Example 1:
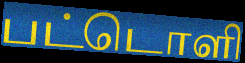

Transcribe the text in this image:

பட்டொளி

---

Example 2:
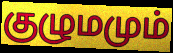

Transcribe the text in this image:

குழுமமும்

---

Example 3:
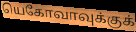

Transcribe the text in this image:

யெகோவாவுக்குக்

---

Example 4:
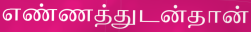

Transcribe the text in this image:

எண்ணத்துடன்தான்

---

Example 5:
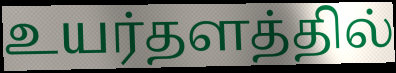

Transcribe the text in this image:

உயர்தளத்தில்